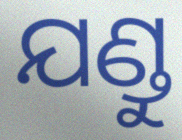
ଯଣ୍ଡୁ